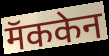
मॅककेन